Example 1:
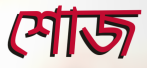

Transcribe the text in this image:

শোজ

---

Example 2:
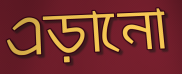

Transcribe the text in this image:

এড়ানো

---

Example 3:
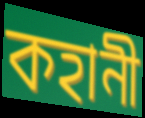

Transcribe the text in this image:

কহানী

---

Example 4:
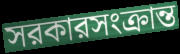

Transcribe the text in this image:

সরকারসংক্রান্ত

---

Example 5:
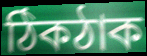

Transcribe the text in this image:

ঠিকঠাক